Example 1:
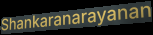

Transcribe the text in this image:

Shankaranarayanan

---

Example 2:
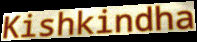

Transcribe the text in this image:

Kishkindha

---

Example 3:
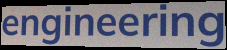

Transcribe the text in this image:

engineering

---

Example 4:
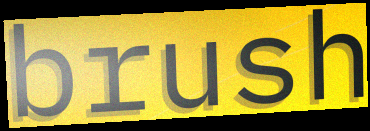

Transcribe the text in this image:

brush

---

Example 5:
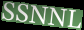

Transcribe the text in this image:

SSNNL